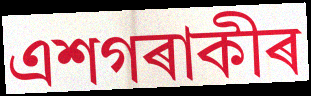
এশগৰাকীৰ